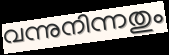
വന്നുനിന്നതും